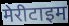
मेरीटाइम